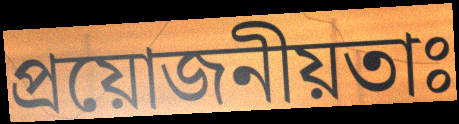
প্ৰয়োজনীয়তাঃ